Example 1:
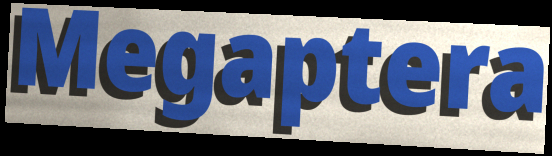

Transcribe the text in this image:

Megaptera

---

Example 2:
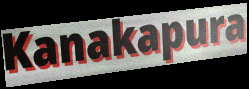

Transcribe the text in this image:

Kanakapura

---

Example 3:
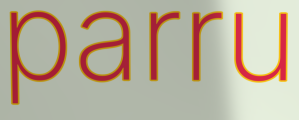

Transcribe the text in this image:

parru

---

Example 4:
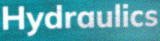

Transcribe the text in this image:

Hydraulics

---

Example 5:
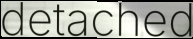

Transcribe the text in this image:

detached